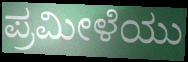
ಪ್ರಮೀಳೆಯು